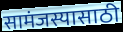
सामंजस्यासाठी